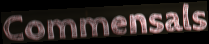
Commensals